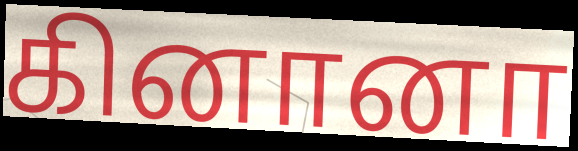
கினானா